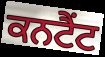
ਕਨਟੈਂਟ